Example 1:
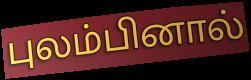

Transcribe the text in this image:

புலம்பினால்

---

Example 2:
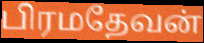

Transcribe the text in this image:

பிரமதேவன்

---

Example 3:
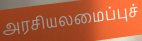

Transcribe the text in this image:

அரசியலமைப்புச்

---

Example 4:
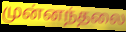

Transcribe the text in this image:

முன்னந்தலை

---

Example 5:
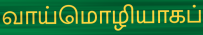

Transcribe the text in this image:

வாய்மொழியாகப்